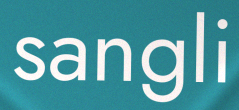
sangli